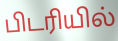
பிடரியில்